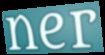
ner